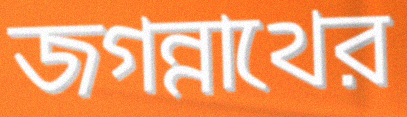
জগন্নাথের